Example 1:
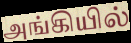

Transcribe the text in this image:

அங்கியில்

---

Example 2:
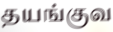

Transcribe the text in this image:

தயங்குவ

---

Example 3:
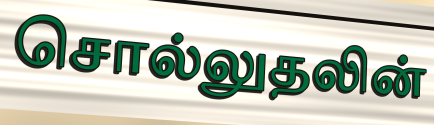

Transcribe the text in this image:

சொல்லுதலின்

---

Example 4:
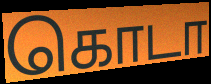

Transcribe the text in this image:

கொடா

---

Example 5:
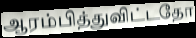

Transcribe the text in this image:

ஆரம்பித்துவிட்டதோ